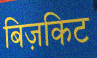
बिज़किट